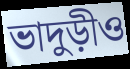
ভাদুড়ীও